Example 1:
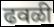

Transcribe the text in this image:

ढवळी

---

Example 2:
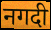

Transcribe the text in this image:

नगदी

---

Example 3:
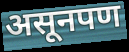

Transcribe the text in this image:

असूनपण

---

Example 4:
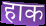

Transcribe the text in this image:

हाक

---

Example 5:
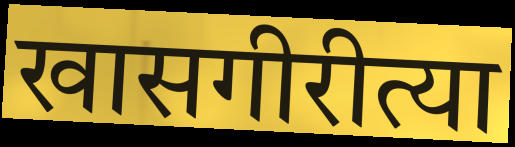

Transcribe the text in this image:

खासगीरीत्या